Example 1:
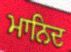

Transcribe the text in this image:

ਮਾਨਿਦ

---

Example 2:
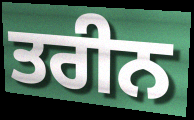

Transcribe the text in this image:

ਤਰੀਨ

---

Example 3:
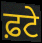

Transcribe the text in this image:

ਫ਼ਟੇ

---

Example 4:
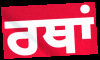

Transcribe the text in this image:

ਰਥਾਂ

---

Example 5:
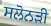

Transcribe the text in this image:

ਸਲੋਨੜੀ